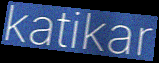
katikar